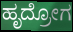
ಹೃದ್ರೋಗ